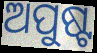
ଅପୁଷ୍ଟ